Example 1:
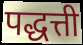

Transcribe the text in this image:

पद्धत्ती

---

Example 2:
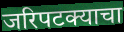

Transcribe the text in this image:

जरिपटक्याचा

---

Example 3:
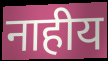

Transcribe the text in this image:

नाहीय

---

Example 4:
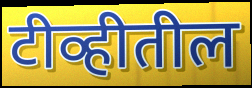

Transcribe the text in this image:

टीव्हीतील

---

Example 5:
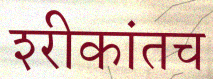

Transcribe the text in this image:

श्रीकांतच